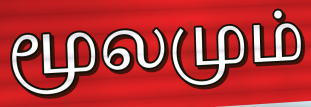
மூலமும்